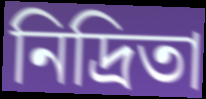
নিদ্রিতা